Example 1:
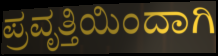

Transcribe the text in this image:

ಪ್ರವೃತ್ತಿಯಿಂದಾಗಿ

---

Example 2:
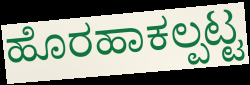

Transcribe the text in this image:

ಹೊರಹಾಕಲ್ಪಟ್ಟ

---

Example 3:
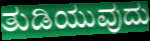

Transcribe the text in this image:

ತುಡಿಯುವುದು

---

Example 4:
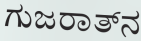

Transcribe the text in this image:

ಗುಜರಾತ್‌ನ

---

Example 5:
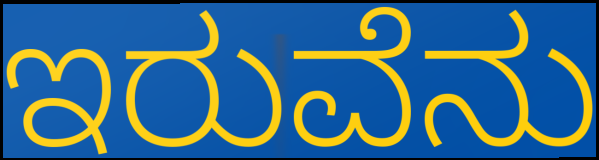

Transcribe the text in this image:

ಇರುವೆನು